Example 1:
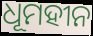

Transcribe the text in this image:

ଧୂମହୀନ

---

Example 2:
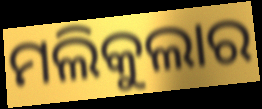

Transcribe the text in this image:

ମଲିକୁଲାର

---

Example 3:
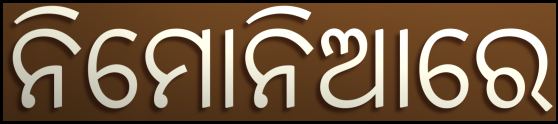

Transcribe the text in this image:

ନିମୋନିଆରେ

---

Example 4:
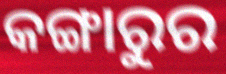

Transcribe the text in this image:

କଙ୍ଗାରୁର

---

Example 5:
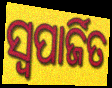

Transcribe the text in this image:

ସ୍ଵପାର୍ଜିତ